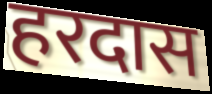
हरदास